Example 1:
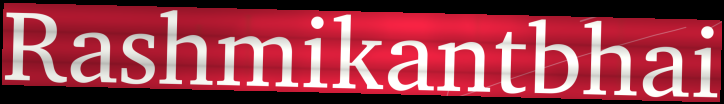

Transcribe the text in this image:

Rashmikantbhai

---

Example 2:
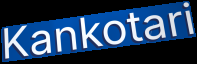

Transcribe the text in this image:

Kankotari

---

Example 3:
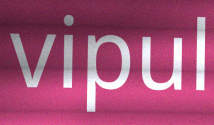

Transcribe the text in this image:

vipul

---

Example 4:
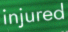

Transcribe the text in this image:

injured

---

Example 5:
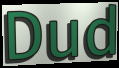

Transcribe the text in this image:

Dud